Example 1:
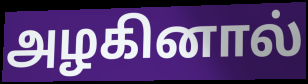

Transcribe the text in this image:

அழகினால்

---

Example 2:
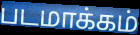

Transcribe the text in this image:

படமாக்கம்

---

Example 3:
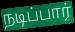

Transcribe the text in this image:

நடிப்பார்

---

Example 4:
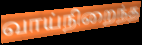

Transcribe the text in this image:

வாய்நிறைந்த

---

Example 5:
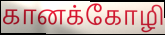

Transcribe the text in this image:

கானக்கோழி